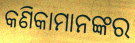
କଣିକାମାନଙ୍କର